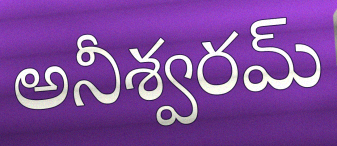
అనీశ్వరమ్